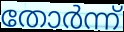
തോർന്ന്